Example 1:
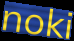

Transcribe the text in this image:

noki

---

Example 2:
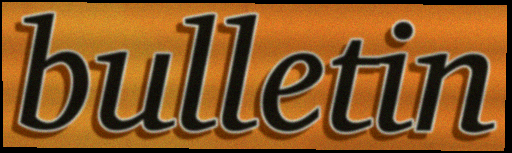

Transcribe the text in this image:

bulletin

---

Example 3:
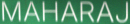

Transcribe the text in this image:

MAHARAJ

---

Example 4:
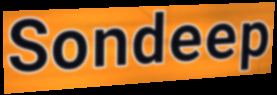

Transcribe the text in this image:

Sondeep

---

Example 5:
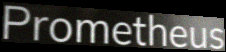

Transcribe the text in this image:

Prometheus